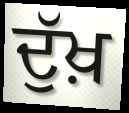
ਦੁੱਖ਼